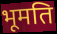
भूमति